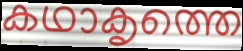
കഥാകൃത്തെ